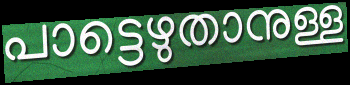
പാട്ടെഴുതാനുള്ള